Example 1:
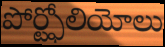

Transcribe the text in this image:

పోర్ట్ఫోలియోలు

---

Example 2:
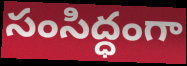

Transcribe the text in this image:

సంసిద్ధంగా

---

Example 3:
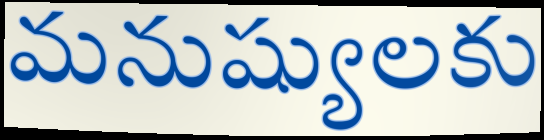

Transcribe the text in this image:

మనుష్యులకు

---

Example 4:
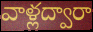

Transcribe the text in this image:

వాళ్లద్వారా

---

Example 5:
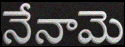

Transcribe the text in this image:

నేనామె